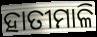
ହାତୀମାଳି